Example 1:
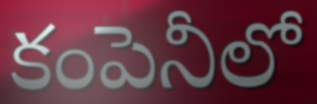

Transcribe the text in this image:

కంపెనీలో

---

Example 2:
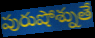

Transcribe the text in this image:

పురుషోశ్నుతే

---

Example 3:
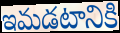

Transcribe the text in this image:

ఇమడటానికి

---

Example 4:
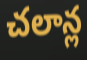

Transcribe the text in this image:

చలాన్ల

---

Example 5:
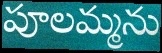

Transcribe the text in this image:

పూలమ్మను